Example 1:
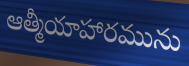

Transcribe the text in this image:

ఆత్మీయాహారమును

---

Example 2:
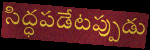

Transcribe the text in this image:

సిద్ధపడేటప్పుడు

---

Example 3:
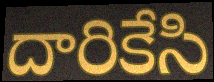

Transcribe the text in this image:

దారికేసి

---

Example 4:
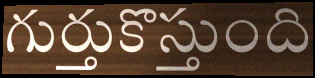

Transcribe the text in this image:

గుర్తుకొస్తుంది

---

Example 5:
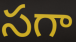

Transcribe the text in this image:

సగా